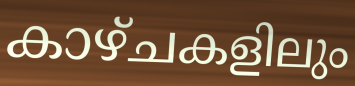
കാഴ്ചകളിലും